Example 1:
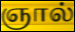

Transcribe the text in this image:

ஞால்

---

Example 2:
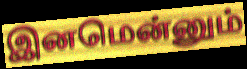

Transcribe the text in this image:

இனமென்னும்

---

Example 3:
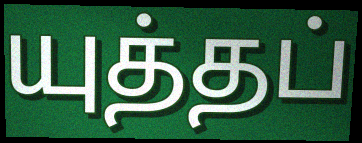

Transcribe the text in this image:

யுத்தப்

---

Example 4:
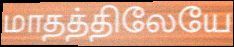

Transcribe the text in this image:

மாதத்திலேயே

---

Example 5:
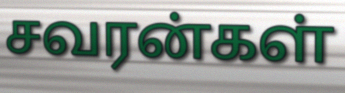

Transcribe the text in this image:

சவரன்கள்